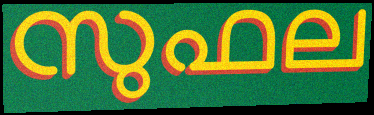
സുഫല